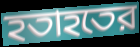
হতাহতের